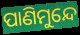
ପାଣିମୁନ୍ଦେ